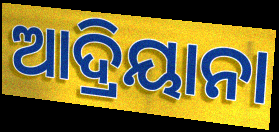
ଆଦ୍ରିୟାନା